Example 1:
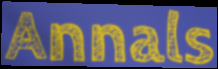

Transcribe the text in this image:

Annals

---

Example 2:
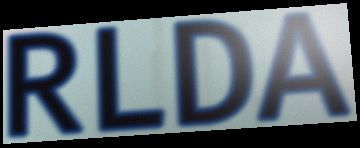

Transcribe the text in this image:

RLDA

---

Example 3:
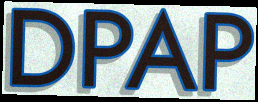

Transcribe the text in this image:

DPAP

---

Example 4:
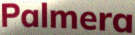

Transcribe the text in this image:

Palmera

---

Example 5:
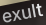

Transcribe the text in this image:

exult